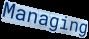
Managing